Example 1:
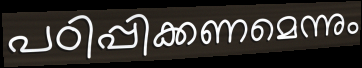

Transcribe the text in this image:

പഠിപ്പിക്കണമെന്നും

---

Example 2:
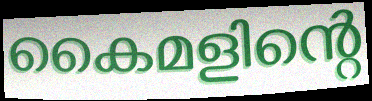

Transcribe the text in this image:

കൈമളിന്റെ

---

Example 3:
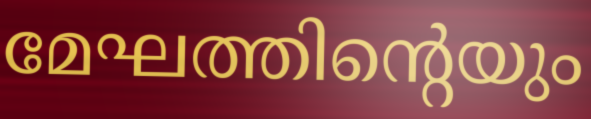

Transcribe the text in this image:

മേഘത്തിന്റെയും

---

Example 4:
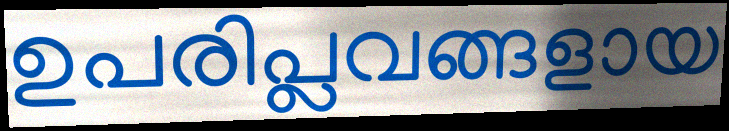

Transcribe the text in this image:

ഉപരിപ്ലവങ്ങളായ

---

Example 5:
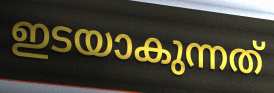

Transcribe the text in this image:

ഇടയാകുന്നത്